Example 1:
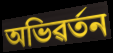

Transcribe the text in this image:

অভিৱৰ্তন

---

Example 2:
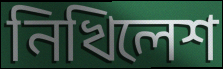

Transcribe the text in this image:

নিখিলেশ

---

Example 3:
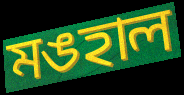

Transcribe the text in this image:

মঙহাল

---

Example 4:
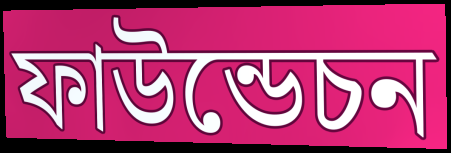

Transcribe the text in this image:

ফাউন্ডেচন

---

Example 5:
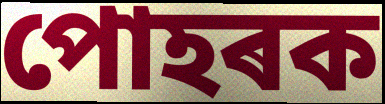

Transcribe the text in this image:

পোহৰক